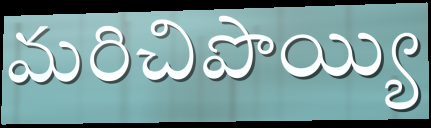
మరిచిపొయ్యి